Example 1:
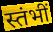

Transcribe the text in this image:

स्तंभीं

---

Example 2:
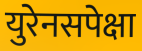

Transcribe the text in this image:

युरेनसपेक्षा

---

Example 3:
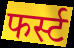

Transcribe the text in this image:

फर्स्ट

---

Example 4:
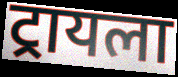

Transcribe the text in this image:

ट्रायला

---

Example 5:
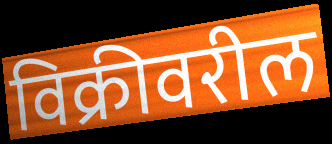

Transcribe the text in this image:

विक्रीवरील